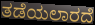
ತಡೆಯಲಾರದೆ